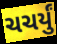
ચચર્યું